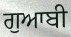
ਗੁਆਬੀ